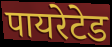
पायरेटेड